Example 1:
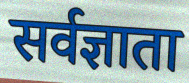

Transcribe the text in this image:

सर्वज्ञाता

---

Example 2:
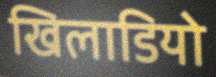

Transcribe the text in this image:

खिलाडियो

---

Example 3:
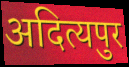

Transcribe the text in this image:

अदित्यपुर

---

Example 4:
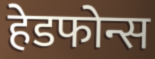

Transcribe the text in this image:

हेडफोन्स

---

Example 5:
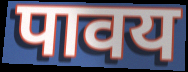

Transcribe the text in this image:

पावय